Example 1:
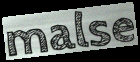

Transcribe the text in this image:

malse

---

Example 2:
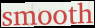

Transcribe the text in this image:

smooth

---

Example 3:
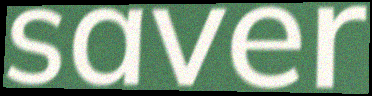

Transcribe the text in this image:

saver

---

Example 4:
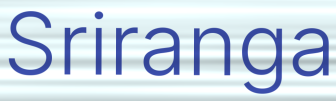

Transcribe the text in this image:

Sriranga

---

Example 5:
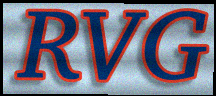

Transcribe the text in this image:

RVG